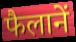
फैलानें